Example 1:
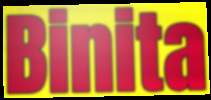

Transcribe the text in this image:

Binita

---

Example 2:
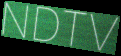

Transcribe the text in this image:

NDTV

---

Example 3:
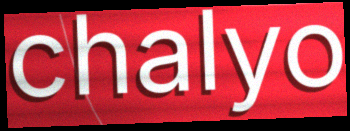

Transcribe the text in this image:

chalyo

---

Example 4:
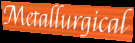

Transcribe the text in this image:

Metallurgical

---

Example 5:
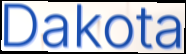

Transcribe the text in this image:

Dakota